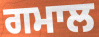
ਗਮਾਲ